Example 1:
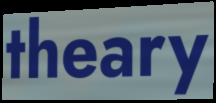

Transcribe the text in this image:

theary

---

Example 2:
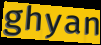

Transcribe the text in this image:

ghyan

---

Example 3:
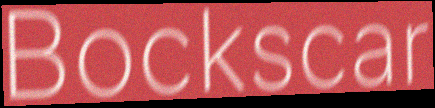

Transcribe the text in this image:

Bockscar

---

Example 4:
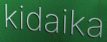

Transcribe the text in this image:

kidaika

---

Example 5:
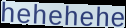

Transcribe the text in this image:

hehehehe